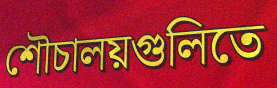
শৌচালয়গুলিতে